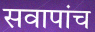
सवापांच